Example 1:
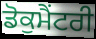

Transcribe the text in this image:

ਡੋਕੁਮੈਂਟਰੀ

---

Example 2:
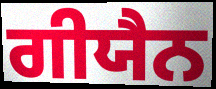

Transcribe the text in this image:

ਗੀਯੈਨ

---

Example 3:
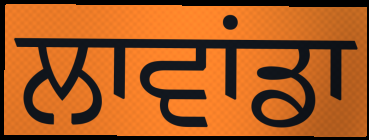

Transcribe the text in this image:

ਲਾਵਾਂਡਾ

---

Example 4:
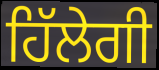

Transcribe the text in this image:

ਹਿੱਲੇਗੀ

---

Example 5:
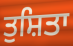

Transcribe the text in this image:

ਤੁਸ਼ਿਤਾ